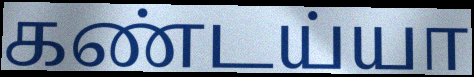
கண்டய்யா